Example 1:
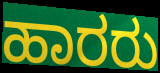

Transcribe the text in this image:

ಹಾರರು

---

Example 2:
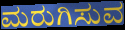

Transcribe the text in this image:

ಮರುಗಿಸುವ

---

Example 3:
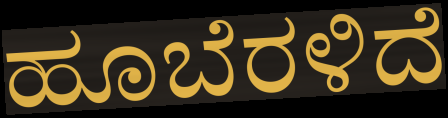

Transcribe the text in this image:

ಹೂಬೆರಳಿದೆ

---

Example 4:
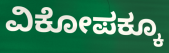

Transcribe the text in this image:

ವಿಕೋಪಕ್ಕೂ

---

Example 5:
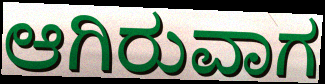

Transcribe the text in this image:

ಆಗಿರುವಾಗ